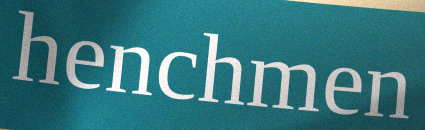
henchmen